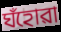
ঘঁহোৱা